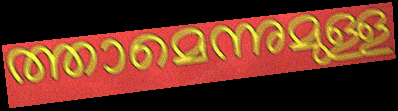
ത്താമെന്നുമുള്ള